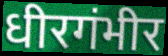
धीरगंभीर